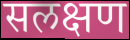
सलक्षण